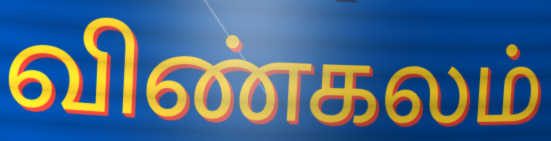
விண்கலம்